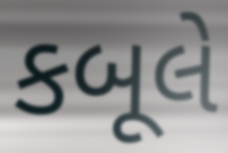
કબૂલે